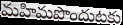
మహిమపొందుటకు